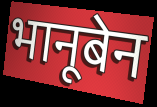
भानूबेन